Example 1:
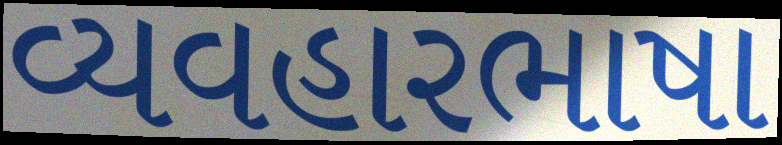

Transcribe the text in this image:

વ્યવહારભાષા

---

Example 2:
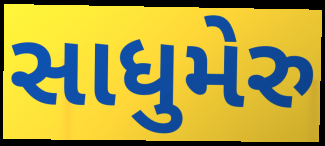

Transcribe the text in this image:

સાધુમેરુ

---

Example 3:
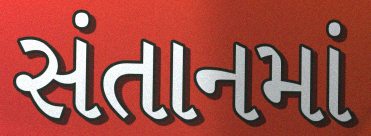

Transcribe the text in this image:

સંતાનમાં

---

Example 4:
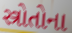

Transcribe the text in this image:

સ્ત્રોતોના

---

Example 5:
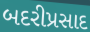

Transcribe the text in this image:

બદરીપ્રસાદ